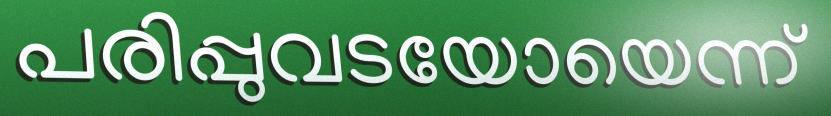
പരിപ്പുവടയോയെന്ന്